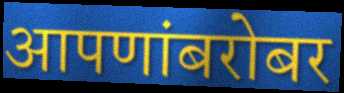
आपणांबरोबर